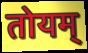
तोयम्